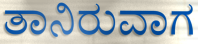
ತಾನಿರುವಾಗ